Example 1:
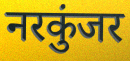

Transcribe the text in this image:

नरकुंजर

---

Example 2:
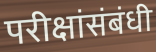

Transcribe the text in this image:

परीक्षांसंबंधी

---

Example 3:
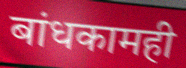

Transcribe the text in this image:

बांधकामही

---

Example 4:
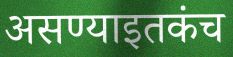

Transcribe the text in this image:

असण्याइतकंच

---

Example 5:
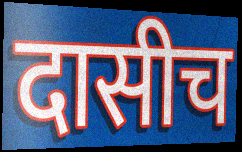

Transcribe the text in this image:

दासीच